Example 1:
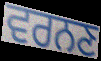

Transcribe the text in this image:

ਵਰਨਣ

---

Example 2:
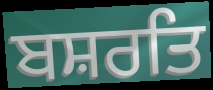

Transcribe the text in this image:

ਬਸ਼ਰਤਿ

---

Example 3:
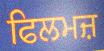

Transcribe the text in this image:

ਫਿਲਮਜ਼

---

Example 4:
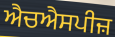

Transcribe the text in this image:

ਐਚਐਸਪੀਜ਼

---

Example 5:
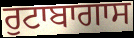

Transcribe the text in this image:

ਰੁਟਾਬਾਗਾਸ